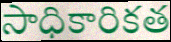
సాధికారికత